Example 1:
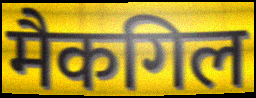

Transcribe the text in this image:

मैकगिल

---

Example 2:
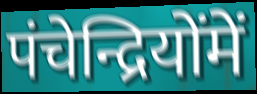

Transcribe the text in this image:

पंचेन्द्रियोंमें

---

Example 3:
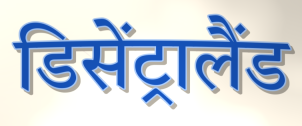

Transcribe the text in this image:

डिसेंट्रालैंड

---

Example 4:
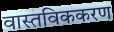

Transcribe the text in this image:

वास्तविककरण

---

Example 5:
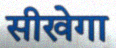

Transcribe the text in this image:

सीखेगा